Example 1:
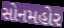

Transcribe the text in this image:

સોનમહોર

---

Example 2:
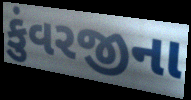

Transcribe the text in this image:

કુંવરજીના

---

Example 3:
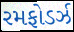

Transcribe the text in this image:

રમફોડર્ઝ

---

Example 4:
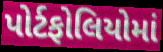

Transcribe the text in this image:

પોર્ટફોલિયોમાં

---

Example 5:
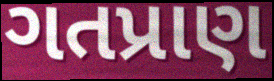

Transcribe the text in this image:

ગતપ્રાણ